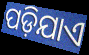
ପଡ଼ିଯାଏ